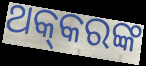
ଥକ୍‌କରଙ୍କ